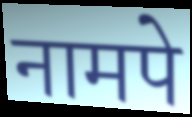
नामपे